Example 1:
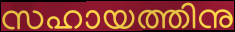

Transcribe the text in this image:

സഹായത്തിനു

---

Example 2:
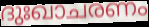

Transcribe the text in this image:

ദുഃഖാചരണം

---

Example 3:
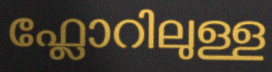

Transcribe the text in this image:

ഫ്ലോറിലുള്ള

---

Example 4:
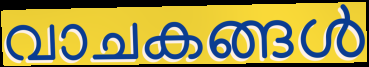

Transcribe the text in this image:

വാചകങ്ങൾ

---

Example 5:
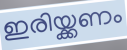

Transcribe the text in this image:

ഇരിയ്ക്കണം